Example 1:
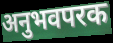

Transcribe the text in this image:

अनुभवपरक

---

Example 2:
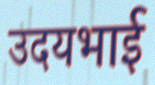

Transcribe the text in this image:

उदयभाई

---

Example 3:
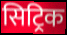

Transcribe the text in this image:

सिट्रिक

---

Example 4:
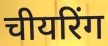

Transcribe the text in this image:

चीयरिंग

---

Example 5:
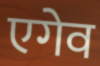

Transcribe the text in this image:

एगेव